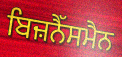
ਬਿਜ਼ਨੈੱਸਮੈਨ